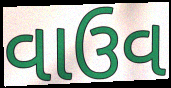
વાઉવ